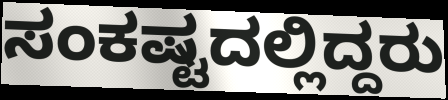
ಸಂಕಷ್ಟದಲ್ಲಿದ್ದರು